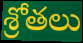
శ్రోతలు